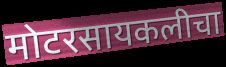
मोटरसायकलीचा